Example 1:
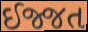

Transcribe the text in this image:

ઈજ્જત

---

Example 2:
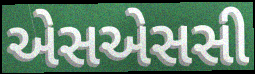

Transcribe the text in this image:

એસએસસી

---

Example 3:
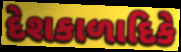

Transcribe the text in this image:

દેશકાળાદિકે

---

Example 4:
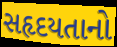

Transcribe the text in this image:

સહૃદયતાનો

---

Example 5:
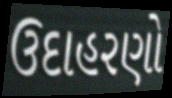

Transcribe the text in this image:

ઉદાહરણો